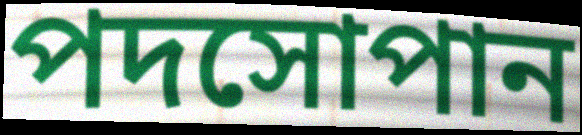
পদসোপান